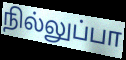
நில்லுப்பா